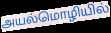
அயல்மொழியில்